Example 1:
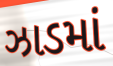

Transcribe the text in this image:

ઝાડમાં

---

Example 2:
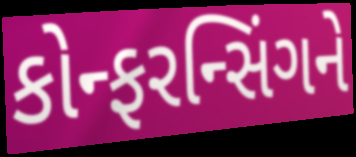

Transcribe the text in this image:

કોન્ફરન્સિંગને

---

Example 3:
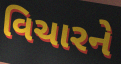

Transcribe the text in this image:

વિચારને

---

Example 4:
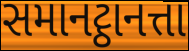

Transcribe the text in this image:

સમાનટ્ઠાનત્તા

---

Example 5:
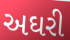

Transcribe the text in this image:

અઘરી